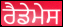
ਰੈਡੇਮੇਸ